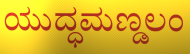
ಯುದ್ಧಮಣ್ಡಲಂ